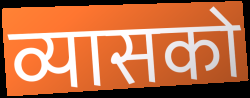
व्यासको